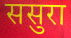
ससुरा